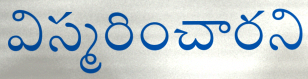
విస్మరించారని